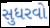
સુધરવો